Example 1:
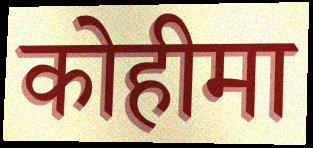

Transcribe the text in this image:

कोहीमा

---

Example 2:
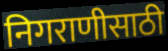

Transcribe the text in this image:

निगराणीसाठी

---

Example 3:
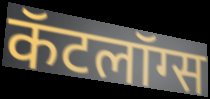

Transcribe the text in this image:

कॅटलॉग्स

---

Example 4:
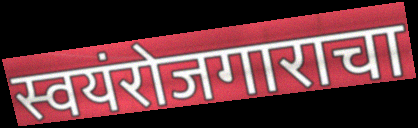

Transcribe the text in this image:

स्वयंरोजगाराचा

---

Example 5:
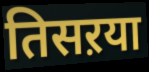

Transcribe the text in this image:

तिसऱया